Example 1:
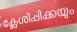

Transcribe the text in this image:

ക്ലേശിപ്പിക്കയും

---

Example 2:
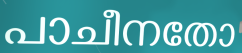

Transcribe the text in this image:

പാചീനതോ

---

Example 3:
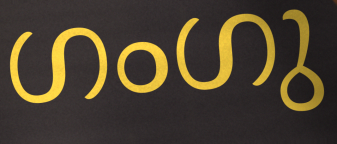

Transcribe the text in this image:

ഗംഗു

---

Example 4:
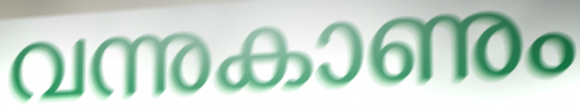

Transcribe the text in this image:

വന്നുകാണും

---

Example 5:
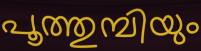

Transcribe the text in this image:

പൂത്തുമ്പിയും